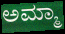
ಅಮ್ಮಾ